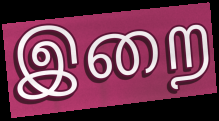
இறை